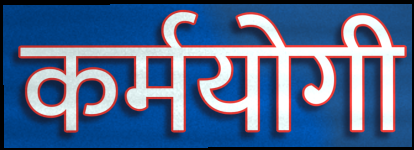
कर्मयोगी